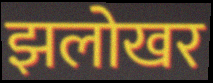
झलोखर